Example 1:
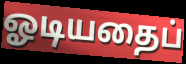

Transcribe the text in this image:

ஓடியதைப்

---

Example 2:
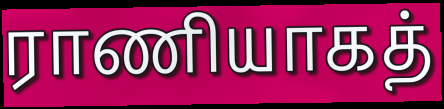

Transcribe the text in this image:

ராணியாகத்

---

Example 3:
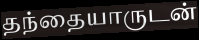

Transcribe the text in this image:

தந்தையாருடன்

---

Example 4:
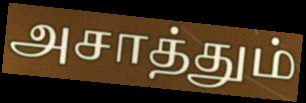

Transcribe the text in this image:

அசாத்தும்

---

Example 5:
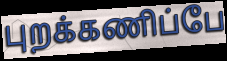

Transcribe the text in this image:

புறக்கணிப்பே